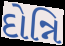
દોન્નિ